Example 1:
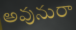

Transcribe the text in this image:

అవునురా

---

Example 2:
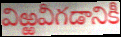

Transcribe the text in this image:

విఱ్ఱవీగడానికీ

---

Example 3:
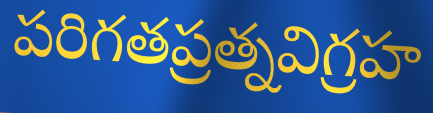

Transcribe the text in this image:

పరిగతప్రత్నవిగ్రహ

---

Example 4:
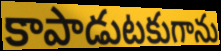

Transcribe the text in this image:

కాపాడుటకుగాను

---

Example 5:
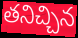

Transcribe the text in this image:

తనిచ్చిన